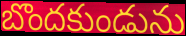
బొందకుండును